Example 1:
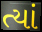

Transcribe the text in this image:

ત્‍યાં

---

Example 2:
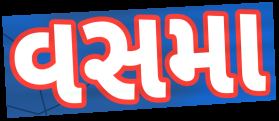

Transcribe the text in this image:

વસમા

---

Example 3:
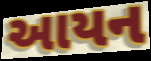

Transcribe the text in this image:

આયન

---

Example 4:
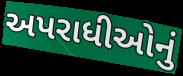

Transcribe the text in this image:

અપરાધીઓનું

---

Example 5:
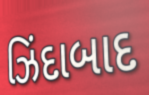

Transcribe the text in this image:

ઝિંદાબાદ